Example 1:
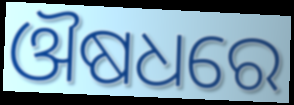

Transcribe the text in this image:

ଔଷଧରେ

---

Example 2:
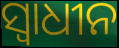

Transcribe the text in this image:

ସ୍ୱାଧୀନ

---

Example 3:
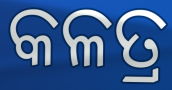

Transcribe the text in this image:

କଳତ୍ର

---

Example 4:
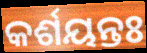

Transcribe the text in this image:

କର୍ଶୟନ୍ତଃ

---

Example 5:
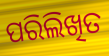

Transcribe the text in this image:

ପରିଲିଖିତ